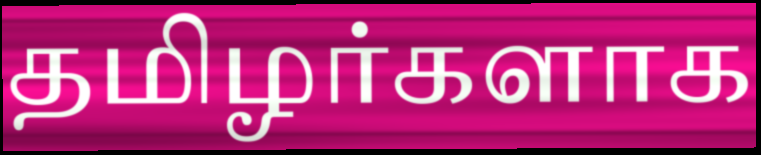
தமிழர்களாக